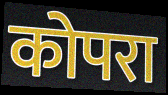
कोपरा